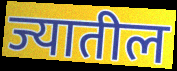
ज्यातील